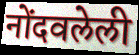
नोंदवलेली